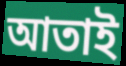
আতাই